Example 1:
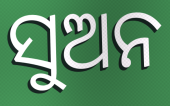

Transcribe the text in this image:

ସୁଅନ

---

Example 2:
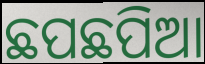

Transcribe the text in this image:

ଛପଛପିଆ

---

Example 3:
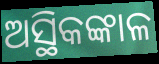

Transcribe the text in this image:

ଅସ୍ଥିକଙ୍କାଳ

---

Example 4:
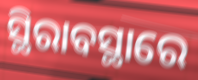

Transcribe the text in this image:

ସ୍ଥିରାବସ୍ଥାରେ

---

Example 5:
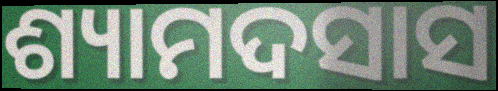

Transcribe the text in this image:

ଶ୍ୟାମଦସାସ